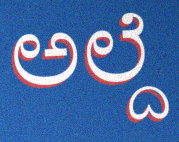
ಅಲ್ದೆ